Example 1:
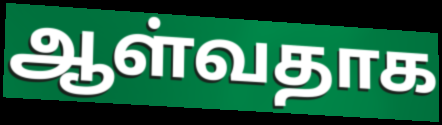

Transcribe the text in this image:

ஆள்வதாக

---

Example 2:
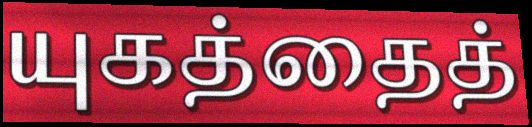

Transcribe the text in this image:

யுகத்தைத்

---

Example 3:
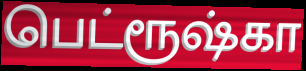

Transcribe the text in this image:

பெட்ரூஷ்கா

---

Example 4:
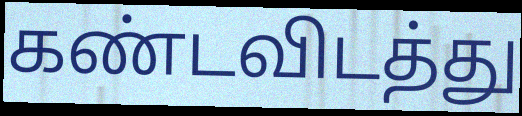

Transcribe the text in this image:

கண்டவிடத்து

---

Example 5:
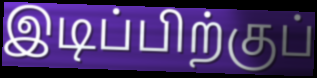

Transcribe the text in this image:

இடிப்பிற்குப்